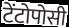
टेंटोपोसी